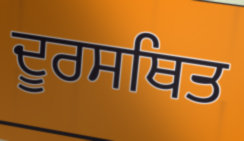
ਦੂਰਸਥਿਤ